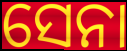
ସେନା